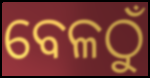
ବେଳଠୁଁ